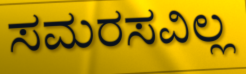
ಸಮರಸವಿಲ್ಲ